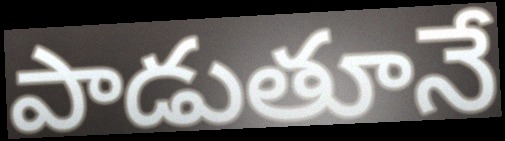
పాడుతూనే